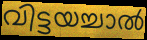
വിട്ടയച്ചാൽ